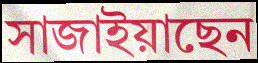
সাজাইয়াছেন